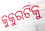
କୁକୁରଟିକୁ